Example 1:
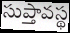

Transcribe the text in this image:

సుప్తావస్థ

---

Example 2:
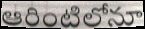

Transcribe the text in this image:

ఆరింటిలోనూ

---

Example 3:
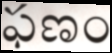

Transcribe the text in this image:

ఫణం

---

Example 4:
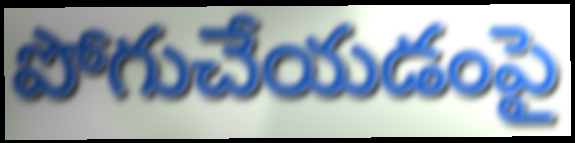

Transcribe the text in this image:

పోగుచేయడంపై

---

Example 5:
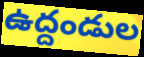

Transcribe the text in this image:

ఉద్దండుల